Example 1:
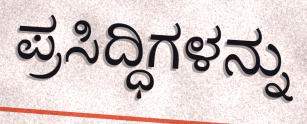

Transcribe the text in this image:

ಪ್ರಸಿದ್ಧಿಗಳನ್ನು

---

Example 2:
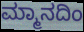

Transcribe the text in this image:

ಮ್ಮಾನದಿಂ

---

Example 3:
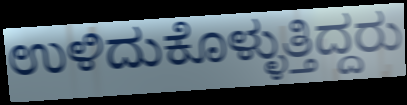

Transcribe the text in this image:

ಉಳಿದುಕೊಳ್ಳುತ್ತಿದ್ದರು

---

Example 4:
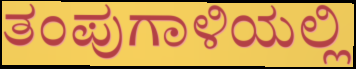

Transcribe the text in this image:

ತಂಪುಗಾಳಿಯಲ್ಲಿ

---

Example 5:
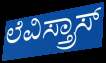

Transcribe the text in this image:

ಲೆವಿಸ್ತ್ರಾಸ್